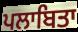
ਪਲਾਬਿਤਾ